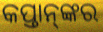
କପ୍ତାନ୍‌ଙ୍କର